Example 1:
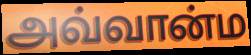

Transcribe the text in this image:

அவ்வான்ம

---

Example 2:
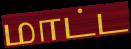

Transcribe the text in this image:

மாட்ட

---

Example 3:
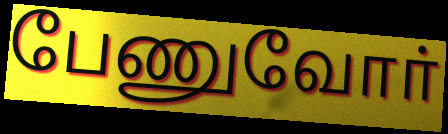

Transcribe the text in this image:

பேணுவோர்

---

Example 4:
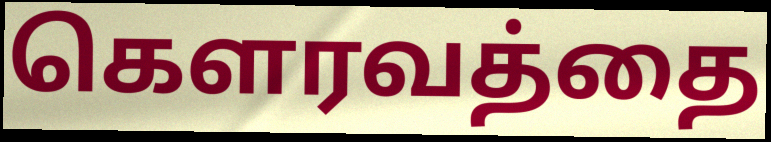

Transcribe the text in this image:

கௌரவத்தை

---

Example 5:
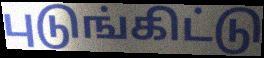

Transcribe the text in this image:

புடுங்கிட்டு